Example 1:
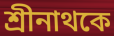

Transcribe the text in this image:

শ্রীনাথকে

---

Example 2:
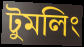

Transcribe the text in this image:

টুমলিং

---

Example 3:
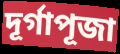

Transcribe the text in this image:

দূর্গাপূজা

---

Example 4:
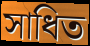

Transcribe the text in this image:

সাধিত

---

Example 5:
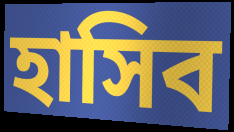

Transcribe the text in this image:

হাসিব